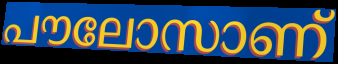
പൗലോസാണ്